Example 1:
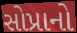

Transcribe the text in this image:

સોપ્રાનો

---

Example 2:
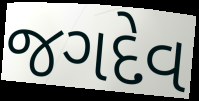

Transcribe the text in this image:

જગદેવ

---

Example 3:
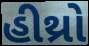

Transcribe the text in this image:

હીથ્રો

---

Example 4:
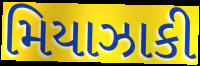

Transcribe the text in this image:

મિયાઝાકી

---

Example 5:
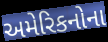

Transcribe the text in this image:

અમેરિકનોના